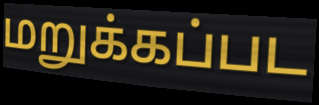
மறுக்கப்பட